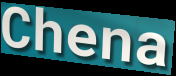
Chena